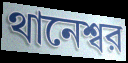
থানেশ্বর